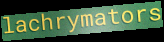
lachrymators